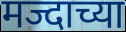
मज्दाच्या